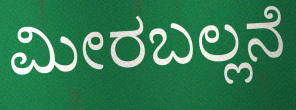
ಮೀರಬಲ್ಲನೆ